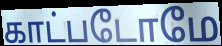
காட்படோமே